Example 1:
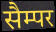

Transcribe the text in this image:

सैम्पर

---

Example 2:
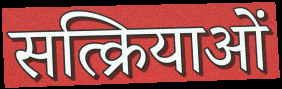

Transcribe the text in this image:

सत्क्रियाओं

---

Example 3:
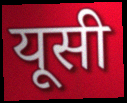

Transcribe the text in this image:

यूसी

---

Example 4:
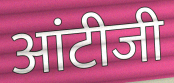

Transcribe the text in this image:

आंटीजी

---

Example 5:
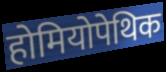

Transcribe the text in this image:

होमियोपेथिक